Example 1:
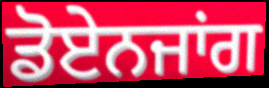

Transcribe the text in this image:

ਡੋਏਨਜਾਂਗ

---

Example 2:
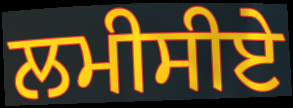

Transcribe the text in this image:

ਲਮੀਸੀਏ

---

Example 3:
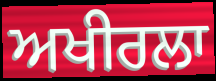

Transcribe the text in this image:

ਅਖੀਰਲਾ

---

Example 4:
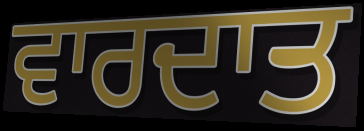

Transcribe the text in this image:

ਵਾਰਦਾਤ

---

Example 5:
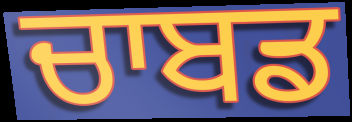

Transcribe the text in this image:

ਚਾਬਡ